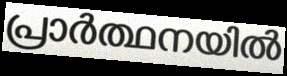
പ്രാർത്ഥനയിൽ